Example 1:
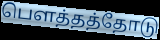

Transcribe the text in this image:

பௌத்தத்தோடு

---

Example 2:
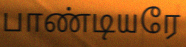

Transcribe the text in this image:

பாண்டியரே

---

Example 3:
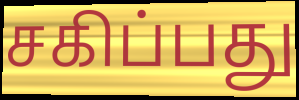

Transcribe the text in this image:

சகிப்பது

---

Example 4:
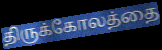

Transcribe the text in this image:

திருக்கோலத்தை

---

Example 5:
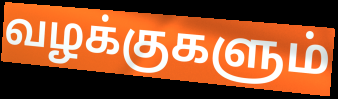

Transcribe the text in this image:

வழக்குகளும்